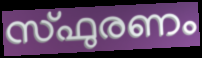
സ്ഫുരണം